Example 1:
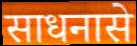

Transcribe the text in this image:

साधनासे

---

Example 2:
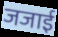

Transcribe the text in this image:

जजाई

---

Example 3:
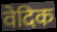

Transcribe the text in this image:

वेदिक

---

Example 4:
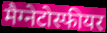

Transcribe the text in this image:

मैग्नेटोस्फीयर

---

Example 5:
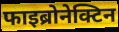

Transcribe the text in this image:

फाइब्रोनेक्टिन